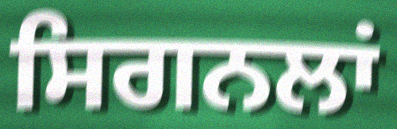
ਸਿਗਨਲਾਂ